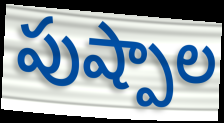
పుష్పాల